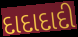
દાદાદાદી